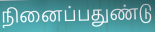
நினைப்பதுண்டு